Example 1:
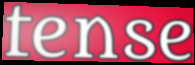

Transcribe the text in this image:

tense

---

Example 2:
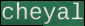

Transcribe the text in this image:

cheyal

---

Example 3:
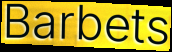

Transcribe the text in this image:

Barbets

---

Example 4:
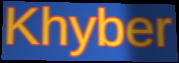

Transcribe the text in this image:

Khyber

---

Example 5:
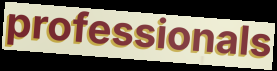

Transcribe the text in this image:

professionals